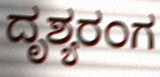
ದೃಶ್ಯರಂಗ